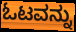
ಓಟವನ್ನು